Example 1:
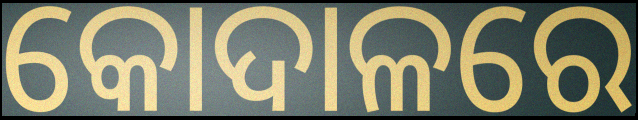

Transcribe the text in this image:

କୋଦାଳରେ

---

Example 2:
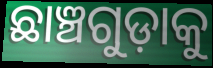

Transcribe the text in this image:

ଛାଞ୍ଚଗୁଡ଼ାକୁ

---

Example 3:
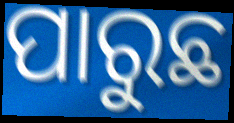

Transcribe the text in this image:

ପାରୁଛ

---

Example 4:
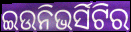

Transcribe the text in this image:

ଇଉନିଭର୍ସିଟିର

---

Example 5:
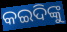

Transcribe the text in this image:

କଇଦିଙ୍କୁ